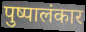
पुष्पालंकार